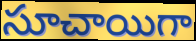
సూచాయిగా